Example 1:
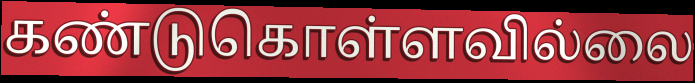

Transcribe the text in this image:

கண்டுகொள்ளவில்லை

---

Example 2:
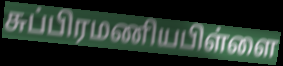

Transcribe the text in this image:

சுப்பிரமணியபிள்ளை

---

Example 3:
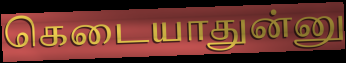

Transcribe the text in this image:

கெடையாதுன்னு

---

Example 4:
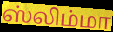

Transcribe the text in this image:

ஸ்லிம்மா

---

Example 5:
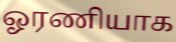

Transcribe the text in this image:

ஓரணியாக